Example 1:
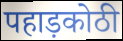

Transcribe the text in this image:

पहाड़कोठी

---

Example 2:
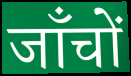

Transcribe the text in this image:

जाँचों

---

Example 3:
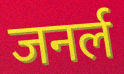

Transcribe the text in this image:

जनर्ल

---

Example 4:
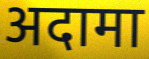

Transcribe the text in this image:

अदामा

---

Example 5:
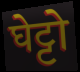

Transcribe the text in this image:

घेट्टो